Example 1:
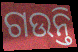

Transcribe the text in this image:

ଗଉନ୍ତି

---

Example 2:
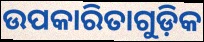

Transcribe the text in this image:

ଉପକାରିତାଗୁଡ଼ିକ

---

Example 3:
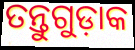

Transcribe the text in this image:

ତନ୍ତୁଗୁଡ଼ାକ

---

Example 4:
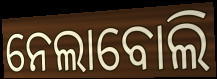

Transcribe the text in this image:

ନେଲାବୋଲି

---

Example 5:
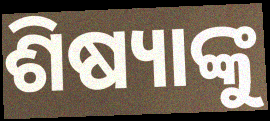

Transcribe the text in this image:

ଶିଷ୍ୟାଙ୍କୁ